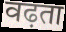
वढ़ता